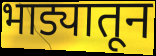
भाड्यातून